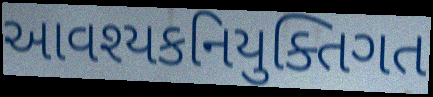
આવશ્યકનિયુક્તિગત